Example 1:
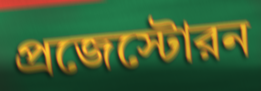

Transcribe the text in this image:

প্রজেস্টোরন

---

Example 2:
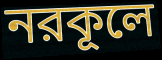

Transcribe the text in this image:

নরকূলে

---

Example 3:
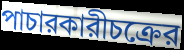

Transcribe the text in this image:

পাচারকারীচক্রের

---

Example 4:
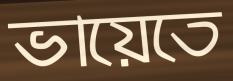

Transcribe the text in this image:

ভায়েতে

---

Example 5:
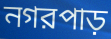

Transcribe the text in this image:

নগরপাড়